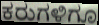
ಕರುಗಳಿಗೂ